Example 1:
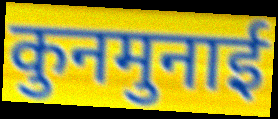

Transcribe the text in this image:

कुनमुनाई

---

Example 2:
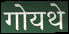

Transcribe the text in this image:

गोयथे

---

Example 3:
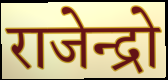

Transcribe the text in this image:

राजेन्द्रो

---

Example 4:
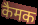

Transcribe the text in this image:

कैमक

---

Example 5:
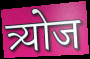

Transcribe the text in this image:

त्र्योज